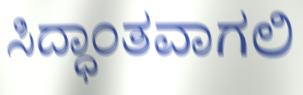
ಸಿದ್ಧಾಂತವಾಗಲಿ